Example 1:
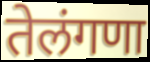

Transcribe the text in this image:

तेलंगणा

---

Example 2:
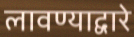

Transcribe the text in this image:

लावण्याद्वारे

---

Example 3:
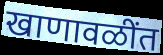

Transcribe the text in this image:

खाणावळींत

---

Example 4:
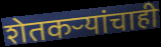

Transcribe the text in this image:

शेतकऱ्यांचाही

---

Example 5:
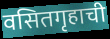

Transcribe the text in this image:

वसितगृहाची